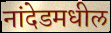
नांदेडमधील